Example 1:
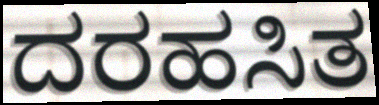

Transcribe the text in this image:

ದರಹಸಿತ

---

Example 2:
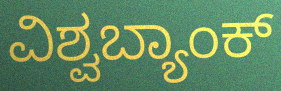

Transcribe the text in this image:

ವಿಶ್ವಬ್ಯಾಂಕ್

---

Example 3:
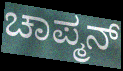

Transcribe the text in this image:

ಚಾಪ್ಮನ್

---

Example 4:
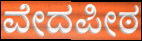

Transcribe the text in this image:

ವೇದಪೀಠ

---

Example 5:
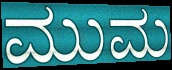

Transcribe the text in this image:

ಮುಮ